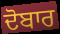
ਦੋਬਾਰ